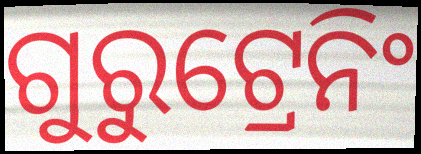
ଗୁରୁଟ୍ରେନିଂ